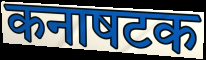
कनाषटक